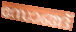
സോങ്ങ്